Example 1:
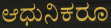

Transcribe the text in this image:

ಆಧುನಿಕರೂ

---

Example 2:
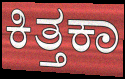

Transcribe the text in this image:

ಕಿತ್ತಕಾ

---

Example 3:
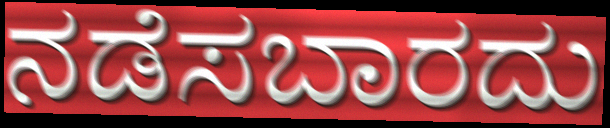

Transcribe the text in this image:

ನಡೆಸಬಾರದು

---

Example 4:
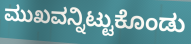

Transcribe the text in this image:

ಮುಖವನ್ನಿಟ್ಟುಕೊಂಡು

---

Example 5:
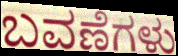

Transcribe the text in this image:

ಬವಣೆಗಳು